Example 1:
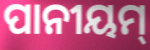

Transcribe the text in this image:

ପାନୀୟମ୍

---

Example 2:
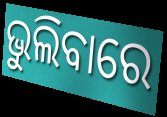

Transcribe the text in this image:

ଭୁଲିବାରେ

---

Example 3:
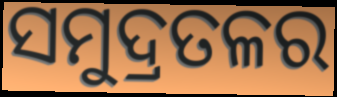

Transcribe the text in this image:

ସମୁଦ୍ରତଳର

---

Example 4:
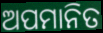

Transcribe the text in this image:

ଅପମାନିତ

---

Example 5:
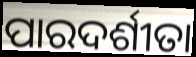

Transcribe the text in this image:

ପାରଦର୍ଶୀତା